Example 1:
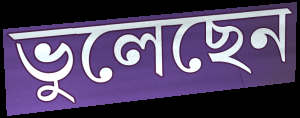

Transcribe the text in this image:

ভুলেছেন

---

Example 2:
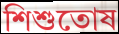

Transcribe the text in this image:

শিশুতোষ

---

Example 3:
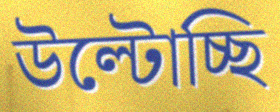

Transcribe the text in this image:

উল্টোচ্ছি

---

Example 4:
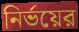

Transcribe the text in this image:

নির্ভয়ের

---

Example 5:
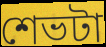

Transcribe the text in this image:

শেভটা